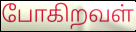
போகிறவள்